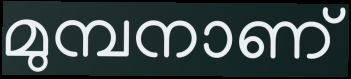
മുമ്പനാണ്